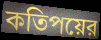
কতিপয়ের